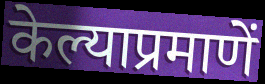
केल्याप्रमाणें